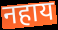
नहाय